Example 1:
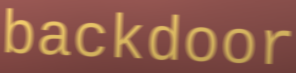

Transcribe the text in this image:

backdoor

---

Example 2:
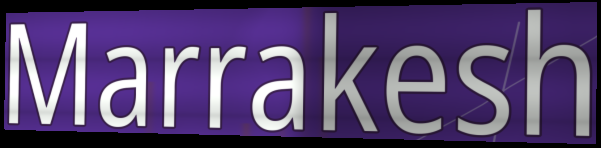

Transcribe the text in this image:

Marrakesh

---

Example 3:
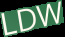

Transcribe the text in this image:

LDW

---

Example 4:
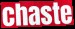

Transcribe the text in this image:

chaste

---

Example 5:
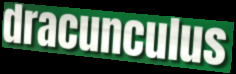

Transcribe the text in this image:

dracunculus